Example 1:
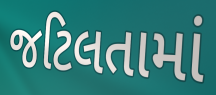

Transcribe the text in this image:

જટિલતામાં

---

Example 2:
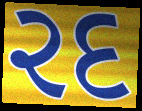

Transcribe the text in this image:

રદ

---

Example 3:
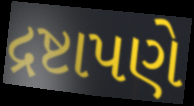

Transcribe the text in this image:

દ્રષ્ટાપણે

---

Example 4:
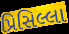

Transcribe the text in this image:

પ્રિસિલ્લા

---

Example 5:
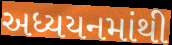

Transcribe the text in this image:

અધ્યયનમાંથી